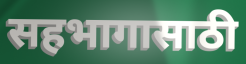
सहभागासाठी